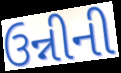
ઉન્નીની